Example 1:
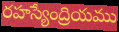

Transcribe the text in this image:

రహస్యేంద్రియము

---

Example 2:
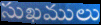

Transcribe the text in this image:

సుఖములు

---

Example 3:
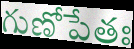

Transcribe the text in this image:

గుణోపేతః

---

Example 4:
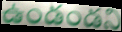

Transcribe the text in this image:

ఉండండని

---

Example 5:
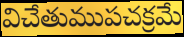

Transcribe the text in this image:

విచేతుముపచక్రమే